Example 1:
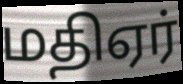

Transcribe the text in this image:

மதிஏர்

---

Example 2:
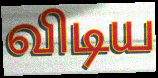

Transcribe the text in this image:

விடிய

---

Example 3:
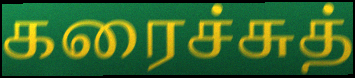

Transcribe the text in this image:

கரைச்சுத்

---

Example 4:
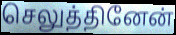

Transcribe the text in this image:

செலுத்தினேன்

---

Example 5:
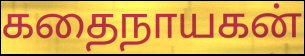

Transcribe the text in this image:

கதைநாயகன்